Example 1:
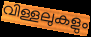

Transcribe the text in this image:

വിള്ളലുകളും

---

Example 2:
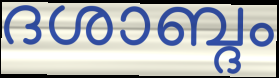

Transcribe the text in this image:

ദശാബ്ദം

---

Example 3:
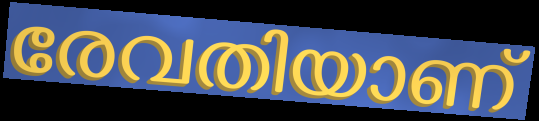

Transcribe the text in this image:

രേവതിയാണ്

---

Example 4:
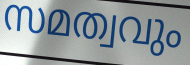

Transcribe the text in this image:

സമത്വവും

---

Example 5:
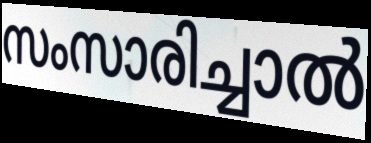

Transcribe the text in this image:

സംസാരിച്ചാൽ